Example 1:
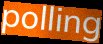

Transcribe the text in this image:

polling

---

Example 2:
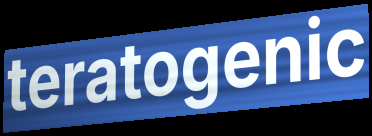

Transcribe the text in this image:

teratogenic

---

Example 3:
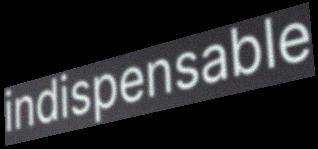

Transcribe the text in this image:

indispensable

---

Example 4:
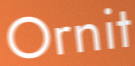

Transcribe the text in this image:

Ornit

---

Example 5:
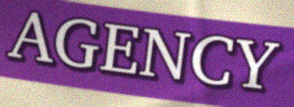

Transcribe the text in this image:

AGENCY